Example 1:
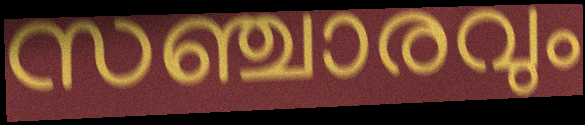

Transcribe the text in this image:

സഞ്ചാരവും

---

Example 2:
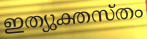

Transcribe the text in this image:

ഇത്യുക്തസ്തം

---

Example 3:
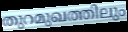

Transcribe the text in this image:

തുറമുഖത്തിലും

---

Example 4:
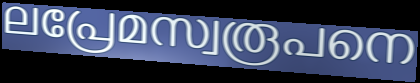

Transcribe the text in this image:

ലപ്രേമസ്വരൂപനെ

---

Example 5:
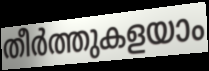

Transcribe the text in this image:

തീർത്തുകളയാം